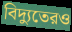
বিদ্যুতেরও